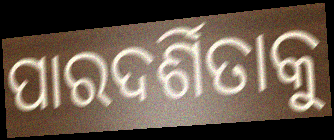
ପାରଦର୍ଶିତାକୁ